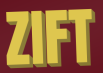
ZIFT